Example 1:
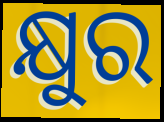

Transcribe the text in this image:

କ୍ଷୁର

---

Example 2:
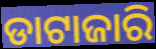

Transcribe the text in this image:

ଡାଟାଜାରି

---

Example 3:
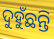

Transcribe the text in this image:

ଦୁହୁଁଛନ୍ତି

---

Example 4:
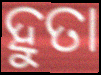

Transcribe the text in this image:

ହୁତା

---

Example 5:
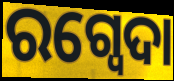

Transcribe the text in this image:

ରଗ୍ବେଦା